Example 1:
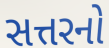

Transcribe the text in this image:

સત્તરનો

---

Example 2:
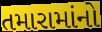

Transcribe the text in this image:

તમારામાંનો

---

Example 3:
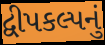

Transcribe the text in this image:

દ્વીપકલ્પનું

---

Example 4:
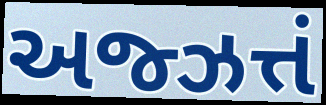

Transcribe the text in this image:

અજ્ઝત્તં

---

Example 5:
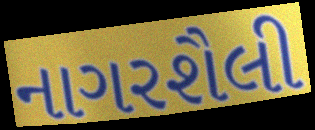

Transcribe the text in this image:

નાગરશૈલી